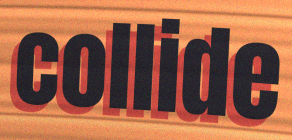
collide